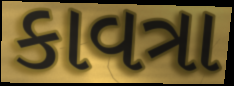
કાવત્રા